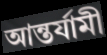
আন্তর্যামী